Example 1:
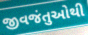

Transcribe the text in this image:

જીવજંતુઓથી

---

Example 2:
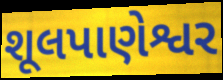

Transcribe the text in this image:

શૂલપાણેશ્વર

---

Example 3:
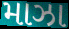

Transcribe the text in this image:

માઝા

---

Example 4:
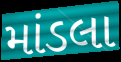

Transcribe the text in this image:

માંડલા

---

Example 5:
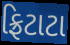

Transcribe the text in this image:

ફ્રિટાટા